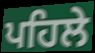
ਪਹਿਲੇ